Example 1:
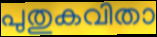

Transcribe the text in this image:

പുതുകവിതാ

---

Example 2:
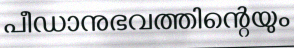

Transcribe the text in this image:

പീഡാനുഭവത്തിന്റെയും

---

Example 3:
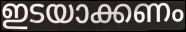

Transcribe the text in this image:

ഇടയാക്കണം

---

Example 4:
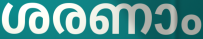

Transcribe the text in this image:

ശരണാം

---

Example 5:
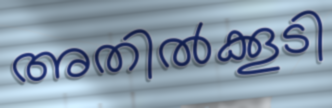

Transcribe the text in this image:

അതിൽക്കൂടി